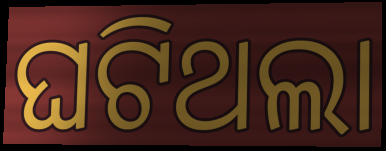
ଘଟିଥଲା